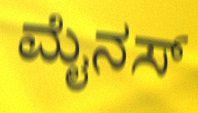
ಮೈನಸ್